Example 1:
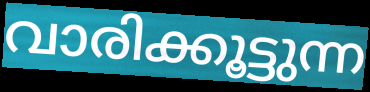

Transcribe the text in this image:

വാരിക്കൂട്ടുന്ന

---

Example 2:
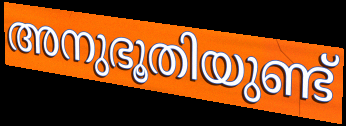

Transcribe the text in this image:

അനുഭൂതിയുണ്ട്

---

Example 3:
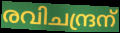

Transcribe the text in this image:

രവിചന്ദ്രന്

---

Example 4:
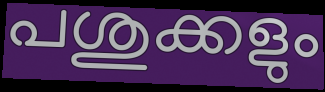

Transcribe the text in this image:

പശുക്കളും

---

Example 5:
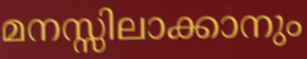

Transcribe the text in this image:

മനസ്സിലാക്കാനും